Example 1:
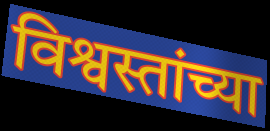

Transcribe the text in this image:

विश्वस्तांच्या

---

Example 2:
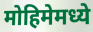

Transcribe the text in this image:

मोहिमेमध्ये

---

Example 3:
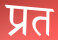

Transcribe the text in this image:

प्रत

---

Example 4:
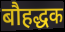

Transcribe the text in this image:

बौहद्धक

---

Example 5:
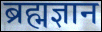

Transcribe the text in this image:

ब्रह्मज्ञान